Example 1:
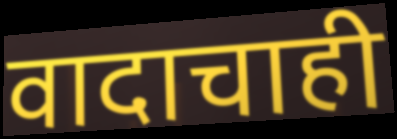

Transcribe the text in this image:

वादाचाही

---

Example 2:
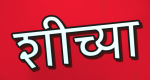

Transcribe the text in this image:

शीच्या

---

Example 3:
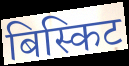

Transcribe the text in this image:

बिस्किट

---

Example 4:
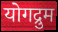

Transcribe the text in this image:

योगद्रुम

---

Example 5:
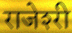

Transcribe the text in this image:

राजेश्री